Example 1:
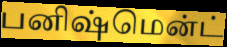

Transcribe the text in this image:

பனிஷ்மென்ட்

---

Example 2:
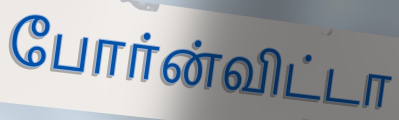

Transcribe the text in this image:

போர்ன்விட்டா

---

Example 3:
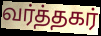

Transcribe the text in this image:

வர்த்தகர்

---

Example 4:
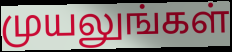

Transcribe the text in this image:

முயலுங்கள்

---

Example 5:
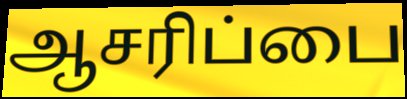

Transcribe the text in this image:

ஆசரிப்பை